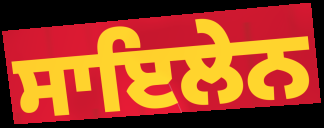
ਸਾਇਲੇਨ